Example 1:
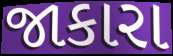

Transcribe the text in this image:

જાકારા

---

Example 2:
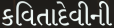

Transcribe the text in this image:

કવિતાદેવીની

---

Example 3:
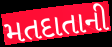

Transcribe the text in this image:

મતદાતાની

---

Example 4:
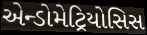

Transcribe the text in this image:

એન્ડોમેટ્રિયોસિસ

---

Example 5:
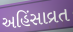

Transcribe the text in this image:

અહિંસાવ્રત